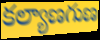
కల్యాణగుణ